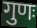
गुणः